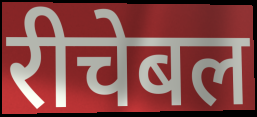
रीचेबल